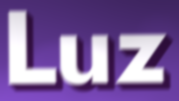
Luz